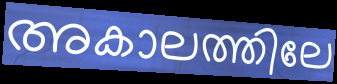
അകാലത്തിലേ